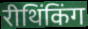
रीथिंकिंग